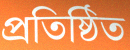
প্রতিষ্ঠিত